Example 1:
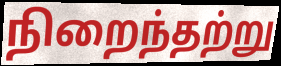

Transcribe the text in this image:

நிறைந்தற்று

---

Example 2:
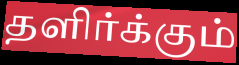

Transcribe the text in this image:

தளிர்க்கும்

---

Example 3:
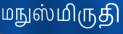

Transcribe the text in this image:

மநுஸ்மிருதி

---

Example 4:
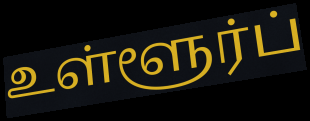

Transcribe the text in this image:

உள்ளூர்ப்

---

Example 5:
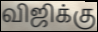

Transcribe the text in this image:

விஜிக்கு